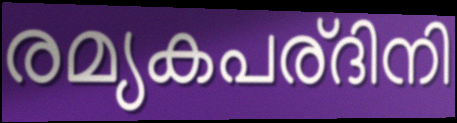
രമ്യകപര്ദിനി